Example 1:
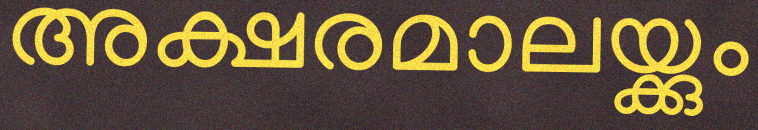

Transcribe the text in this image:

അക്ഷരമാലയ്ക്കും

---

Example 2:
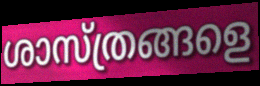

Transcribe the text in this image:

ശാസ്ത്രങ്ങളെ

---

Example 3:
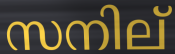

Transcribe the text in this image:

സനില്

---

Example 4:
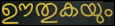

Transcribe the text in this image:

ഊതുകയും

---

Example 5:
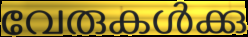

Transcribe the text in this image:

വേരുകൾക്കു